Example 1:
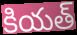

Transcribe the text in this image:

కియత్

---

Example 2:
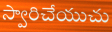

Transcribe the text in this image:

స్వారిచేయుచు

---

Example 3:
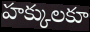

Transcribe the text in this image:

హక్కులకూ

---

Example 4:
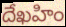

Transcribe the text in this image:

దేఖహిం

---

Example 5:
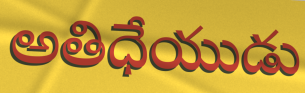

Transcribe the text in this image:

అతిధేయుడు